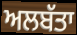
ਅਲਬੱਤਾ